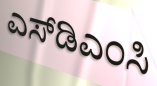
ಎಸ್‌ಡಿಎಂಸಿ